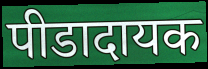
पीडादायक